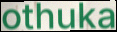
othuka